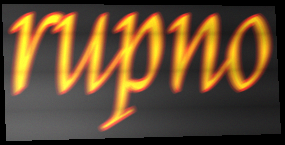
rupno